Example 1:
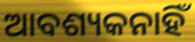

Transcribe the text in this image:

ଆବଶ୍ୟକନାହିଁ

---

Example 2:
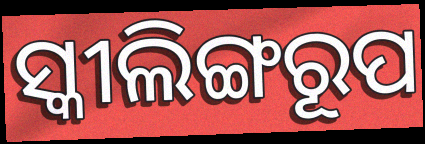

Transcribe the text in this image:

ସ୍କୀଲିଙ୍ଗରୂପ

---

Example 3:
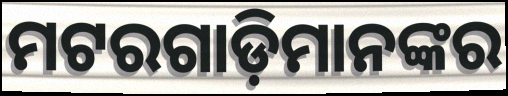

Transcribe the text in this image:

ମଟରଗାଡ଼ିମାନଙ୍କର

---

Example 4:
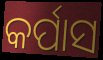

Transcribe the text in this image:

କର୍ପାସ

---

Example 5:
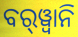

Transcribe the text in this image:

ବର୍‍ୱ୍ୱାନି